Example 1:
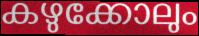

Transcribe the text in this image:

കഴുക്കോലും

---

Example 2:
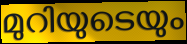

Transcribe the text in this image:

മുറിയുടെയും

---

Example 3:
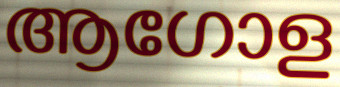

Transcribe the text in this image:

ആഗോള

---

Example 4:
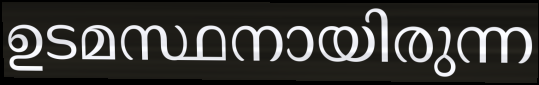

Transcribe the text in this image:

ഉടമസ്ഥനായിരുന്ന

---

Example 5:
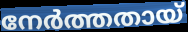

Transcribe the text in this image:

നേർത്തതായ്